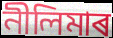
নীলিমাৰ